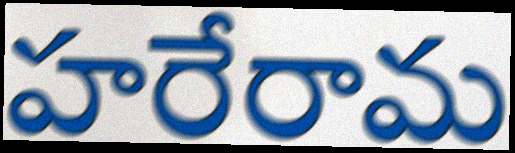
హరేరామ